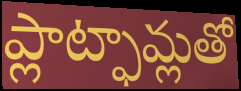
ప్లాట్ఫామ్లతో